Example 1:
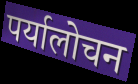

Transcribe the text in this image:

पर्यालोचन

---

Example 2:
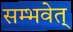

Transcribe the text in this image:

सम्भवेत्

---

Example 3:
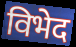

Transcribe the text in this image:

विभेद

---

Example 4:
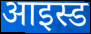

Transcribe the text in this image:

आइस्ड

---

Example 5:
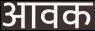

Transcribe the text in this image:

आवक